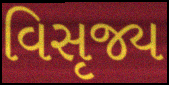
વિસૃજ્ય